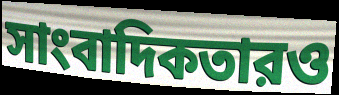
সাংবাদিকতারও